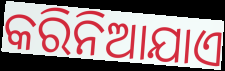
କରିନିଆଯାଏ